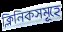
ক্লিনিকসমূহে